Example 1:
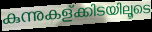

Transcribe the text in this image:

കുന്നുകള്ക്കിടയിലൂടെ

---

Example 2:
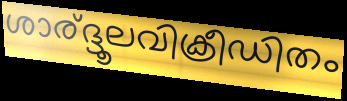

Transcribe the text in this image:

ശാര്ദ്ദൂലവിക്രീഡിതം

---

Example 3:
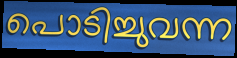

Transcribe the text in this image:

പൊടിച്ചുവന്ന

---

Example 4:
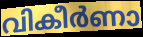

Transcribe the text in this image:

വികീർണാ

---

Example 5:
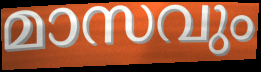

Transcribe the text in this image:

മാസവും